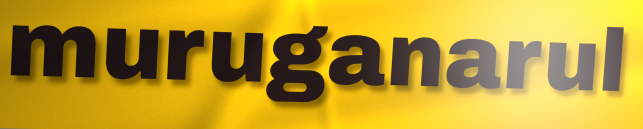
muruganarul